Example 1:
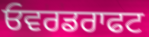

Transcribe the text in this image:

ਓਵਰਡਰਾਫਟ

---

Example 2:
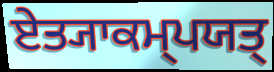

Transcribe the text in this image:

ਏਤ੍ਯਾਕਮ੍ਪਯਤ੍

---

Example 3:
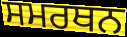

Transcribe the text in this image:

ਸਮਰਥਨ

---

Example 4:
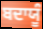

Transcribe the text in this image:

ਬਦਾਯੂੰ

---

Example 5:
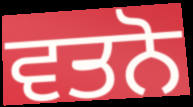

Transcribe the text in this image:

ਵਤਨੋ